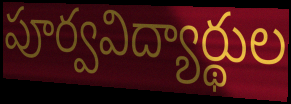
పూర్వవిద్యార్థుల